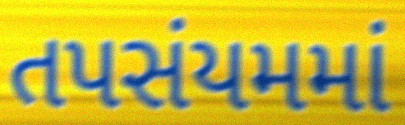
તપસંયમમાં